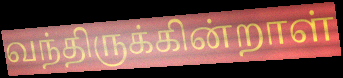
வந்திருக்கின்றாள்